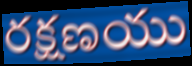
రక్షణయు